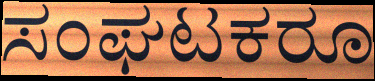
ಸಂಘಟಕರೂ